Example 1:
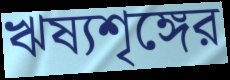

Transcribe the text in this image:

ঋষ্যশৃঙ্গের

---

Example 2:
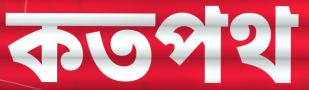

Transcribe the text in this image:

কতপথ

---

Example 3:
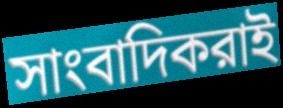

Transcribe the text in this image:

সাংবাদিকরাই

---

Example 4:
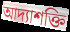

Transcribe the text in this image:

আদ্যাশক্তি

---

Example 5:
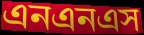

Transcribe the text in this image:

এনএনএস